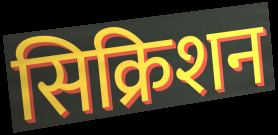
सिक्रिशन